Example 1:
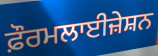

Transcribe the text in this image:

ਫ਼ੌਰਮਲਾਈਜ਼ੇਸ਼ਨ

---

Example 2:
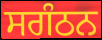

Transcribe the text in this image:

ਸਗੰਠਨ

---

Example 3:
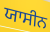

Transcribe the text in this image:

ਯਾਸੀਨ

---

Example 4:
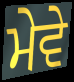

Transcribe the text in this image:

ਮੇਵੇ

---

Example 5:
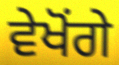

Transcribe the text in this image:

ਵੇਖੋਂਗੇ